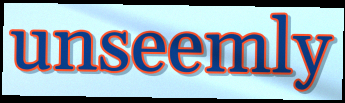
unseemly